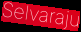
Selvaraju